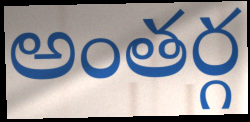
అంతర్గ